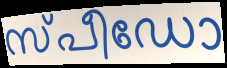
സ്പീഡോ